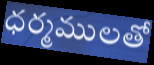
ధర్మములతో